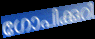
ഗോപിക്കുറി